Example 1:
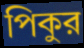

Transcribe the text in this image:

পিকুর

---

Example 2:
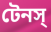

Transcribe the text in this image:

টেনস্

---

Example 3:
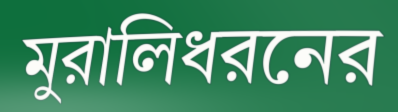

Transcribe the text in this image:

মুরালিধরনের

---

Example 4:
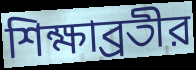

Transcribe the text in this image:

শিক্ষাব্রতীর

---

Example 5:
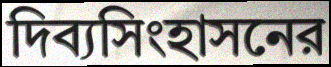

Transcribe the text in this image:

দিব্যসিংহাসনের